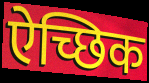
ऐच्छिक